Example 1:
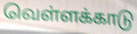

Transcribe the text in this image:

வெள்ளக்காடு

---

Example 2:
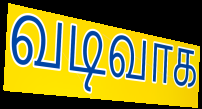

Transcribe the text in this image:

வடிவாக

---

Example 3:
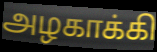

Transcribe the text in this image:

அழகாக்கி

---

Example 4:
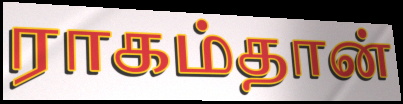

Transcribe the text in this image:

ராகம்தான்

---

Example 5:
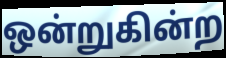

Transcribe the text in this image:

ஒன்றுகின்ற